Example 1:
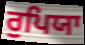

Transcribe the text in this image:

ਰੁਪਿਯਾ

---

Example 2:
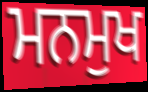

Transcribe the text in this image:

ਮਨਮੁਖ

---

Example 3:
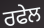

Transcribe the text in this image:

ਰਫੇਲ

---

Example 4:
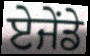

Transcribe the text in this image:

ਏਜੇਂਡੇ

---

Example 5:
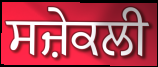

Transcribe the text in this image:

ਸਜ਼ੇਕਲੀ